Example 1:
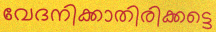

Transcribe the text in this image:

വേദനിക്കാതിരിക്കട്ടെ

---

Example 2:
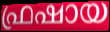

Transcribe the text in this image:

ഫ്രഷായ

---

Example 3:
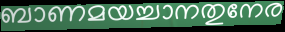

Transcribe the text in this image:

ബാണമയച്ചാനതുനേര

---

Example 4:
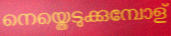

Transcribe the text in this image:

നെയ്തെടുക്കുമ്പോള്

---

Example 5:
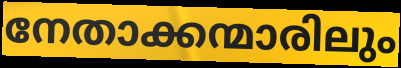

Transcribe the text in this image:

നേതാക്കന്മാരിലും